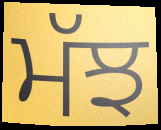
ਮੱਝ